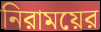
নিরাময়ের